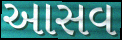
આસવ